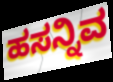
ಹಸನ್ನಿವ